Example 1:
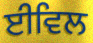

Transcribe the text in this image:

ਈਵਿਲ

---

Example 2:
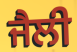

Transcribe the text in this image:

ਜੈਲੀ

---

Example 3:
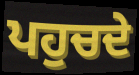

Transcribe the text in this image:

ਪਹੁਚਦੇ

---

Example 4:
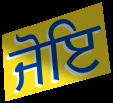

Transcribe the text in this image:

ਜੋਇ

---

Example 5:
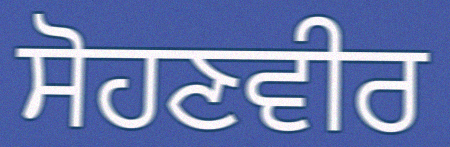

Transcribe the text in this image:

ਸੋਹਣਵੀਰ